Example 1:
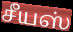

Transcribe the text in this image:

சீயஸ்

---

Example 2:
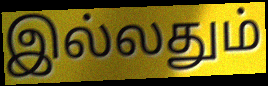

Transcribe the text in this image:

இல்லதும்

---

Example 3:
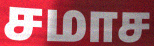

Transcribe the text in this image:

சமாச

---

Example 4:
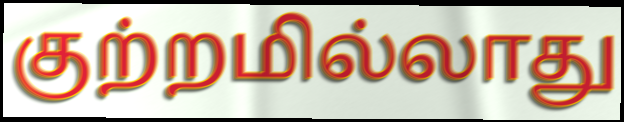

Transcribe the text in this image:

குற்றமில்லாது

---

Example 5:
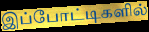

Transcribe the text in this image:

இப்போட்டிகளில்